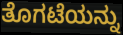
ತೊಗಟೆಯನ್ನು